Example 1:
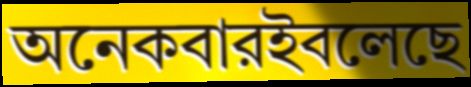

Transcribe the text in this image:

অনেকবারইবলেছে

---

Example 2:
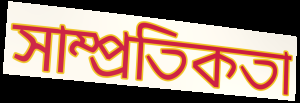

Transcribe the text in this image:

সাম্প্রতিকতা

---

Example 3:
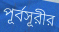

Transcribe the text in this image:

পূর্বসূরীর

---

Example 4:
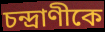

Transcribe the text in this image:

চন্দ্রাণীকে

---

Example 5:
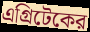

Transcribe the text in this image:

এগ্রিটেকের